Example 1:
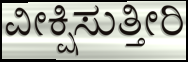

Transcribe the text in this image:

ವೀಕ್ಷಿಸುತ್ತೀರಿ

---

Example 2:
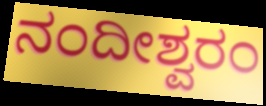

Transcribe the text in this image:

ನಂದೀಶ್ವರಂ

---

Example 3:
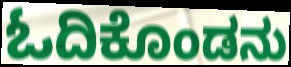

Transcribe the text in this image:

ಓದಿಕೊಂಡನು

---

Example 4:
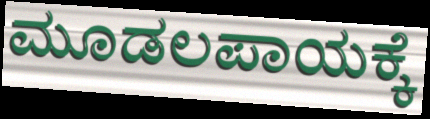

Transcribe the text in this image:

ಮೂಡಲಪಾಯಕ್ಕೆ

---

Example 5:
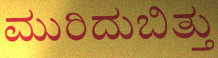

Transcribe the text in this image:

ಮುರಿದುಬಿತ್ತು